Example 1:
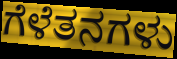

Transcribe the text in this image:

ಗೆಳೆತನಗಳು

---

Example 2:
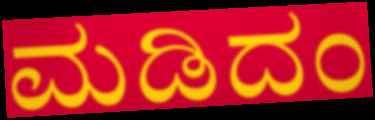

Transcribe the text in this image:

ಮಡಿದಂ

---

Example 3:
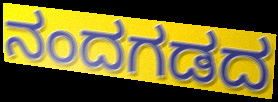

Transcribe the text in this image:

ನಂದಗಡದ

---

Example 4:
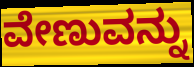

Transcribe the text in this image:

ವೇಣುವನ್ನು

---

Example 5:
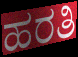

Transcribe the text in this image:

ಹರತಿ